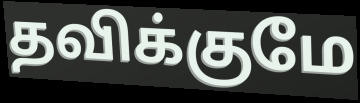
தவிக்குமே